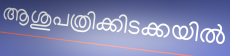
ആശുപത്രിക്കിടക്കയിൽ